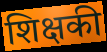
शिक्षकी